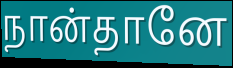
நான்தானே